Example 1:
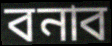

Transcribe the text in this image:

বনাব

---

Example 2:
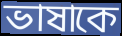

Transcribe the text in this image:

ভাষাকে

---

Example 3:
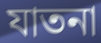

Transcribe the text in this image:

যাতনা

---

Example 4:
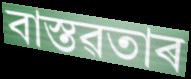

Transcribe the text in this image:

বাস্তৱতাৰ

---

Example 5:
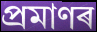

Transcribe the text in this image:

প্ৰমাণৰ